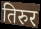
तिरुर